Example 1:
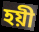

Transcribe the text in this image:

হয়ী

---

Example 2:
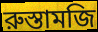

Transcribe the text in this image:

রুস্তামজি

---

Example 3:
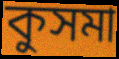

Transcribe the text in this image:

কুসমা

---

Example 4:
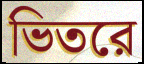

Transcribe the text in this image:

ভিতরে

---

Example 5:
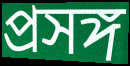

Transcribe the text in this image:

প্রসঙ্গ